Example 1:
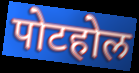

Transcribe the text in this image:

पोटहोल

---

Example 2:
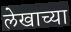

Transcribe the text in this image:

लेखाच्या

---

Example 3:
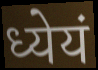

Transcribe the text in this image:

ध्येयं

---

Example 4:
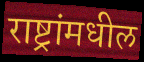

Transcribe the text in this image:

राष्ट्रांमधील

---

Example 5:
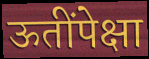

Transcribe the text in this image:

ऊतींपेक्षा